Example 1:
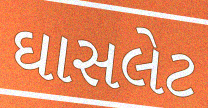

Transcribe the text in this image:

ઘાસલેટ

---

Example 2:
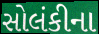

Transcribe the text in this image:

સોલંકીના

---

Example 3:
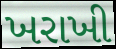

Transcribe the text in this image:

ખરાખી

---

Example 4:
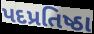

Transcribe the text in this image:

પદપ્રતિષ્ઠા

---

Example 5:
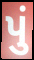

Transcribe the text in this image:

પું